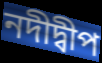
নদীদ্বীপ